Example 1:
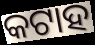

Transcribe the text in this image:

କଟାହ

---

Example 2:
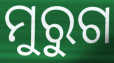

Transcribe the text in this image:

ମୁରୁଗ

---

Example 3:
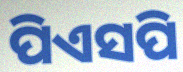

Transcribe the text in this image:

ପିଏସପି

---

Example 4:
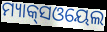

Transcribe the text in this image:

ମ୍ୟାକ୍‌ସଓୟେଲ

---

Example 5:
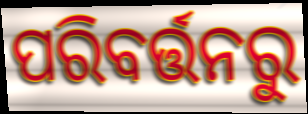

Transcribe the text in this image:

ପରିବର୍ତ୍ତନରୁ